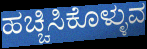
ಹಚ್ಚಿಸಿಕೊಳ್ಳುವ